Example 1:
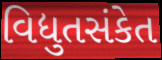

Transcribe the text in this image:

વિદ્યુતસંકેત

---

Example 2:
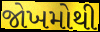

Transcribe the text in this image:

જોખમોથી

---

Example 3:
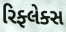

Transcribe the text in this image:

રિફ્લેક્સ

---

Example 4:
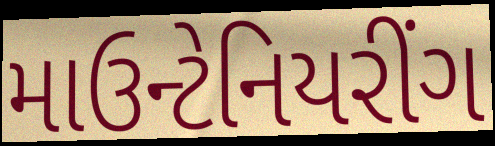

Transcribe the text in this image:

માઉન્ટેનિયરીંગ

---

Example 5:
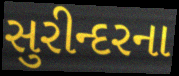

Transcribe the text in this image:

સુરીન્દરના